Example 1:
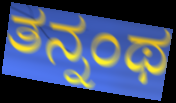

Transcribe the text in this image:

ತನ್ನಂಥ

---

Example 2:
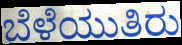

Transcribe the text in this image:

ಬೆಳೆಯುತಿರು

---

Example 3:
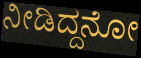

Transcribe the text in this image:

ನೀಡಿದ್ದನೋ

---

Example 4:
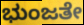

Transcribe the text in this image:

ಭುಂಜತೇ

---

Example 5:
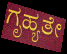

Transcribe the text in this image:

ಗೃಹ್ಯತೇ